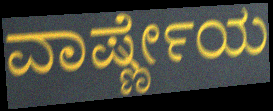
ವಾರ್ಷ್ಣೇಯ